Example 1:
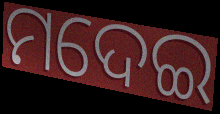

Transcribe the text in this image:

ମଦେଇ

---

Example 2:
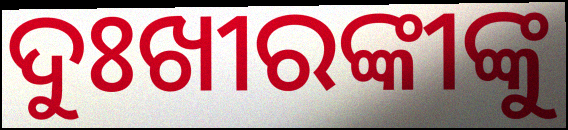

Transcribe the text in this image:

ଦୁଃଖୀରଙ୍କୀଙ୍କୁ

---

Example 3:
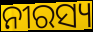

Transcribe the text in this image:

ନୀରସ୍ୟ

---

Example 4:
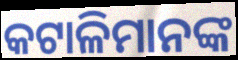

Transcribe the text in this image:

କଟାଳିମାନଙ୍କ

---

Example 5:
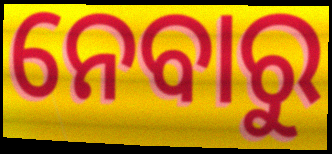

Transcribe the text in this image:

ନେବାରୁ